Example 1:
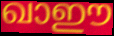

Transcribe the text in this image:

ഖാഈ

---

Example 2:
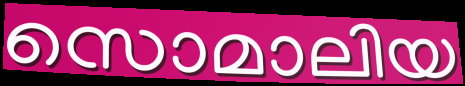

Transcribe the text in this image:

സൊമാലിയ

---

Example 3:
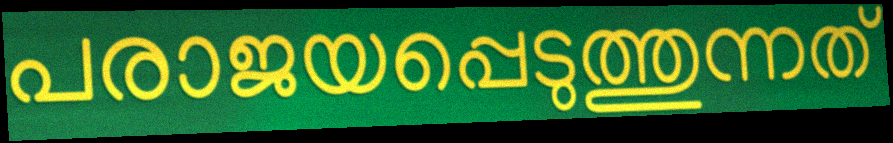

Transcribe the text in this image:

പരാജയപ്പെടുത്തുന്നത്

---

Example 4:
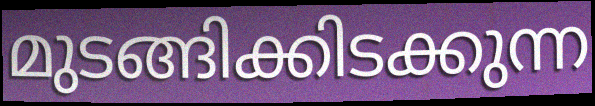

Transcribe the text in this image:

മുടങ്ങിക്കിടക്കുന്ന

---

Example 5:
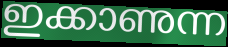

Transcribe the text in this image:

ഇക്കാണുന്ന